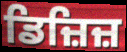
ਡਿਜ਼ਿਜ਼